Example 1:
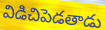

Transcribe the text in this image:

విడిచిపెడతాడు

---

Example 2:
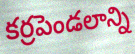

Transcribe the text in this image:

కర్రపెండలాన్ని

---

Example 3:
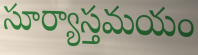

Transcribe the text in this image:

సూర్యాస్తమయం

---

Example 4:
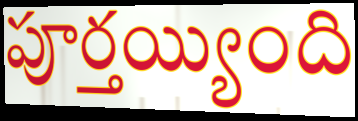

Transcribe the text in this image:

పూర్తయ్యింది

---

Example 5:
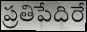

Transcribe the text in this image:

ప్రతిపేదిరే